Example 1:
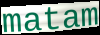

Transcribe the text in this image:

matam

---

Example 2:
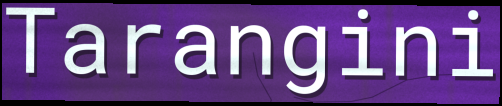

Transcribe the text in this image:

Tarangini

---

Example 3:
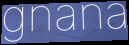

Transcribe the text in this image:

gnana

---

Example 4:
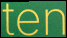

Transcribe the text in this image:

ten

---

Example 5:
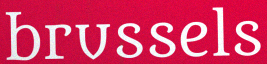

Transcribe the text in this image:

brussels